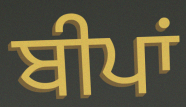
ਬੀਪਾਂ